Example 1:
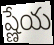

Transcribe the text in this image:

ష్ణేయ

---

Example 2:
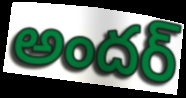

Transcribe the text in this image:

అందర్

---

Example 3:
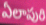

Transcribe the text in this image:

ఏలాపురి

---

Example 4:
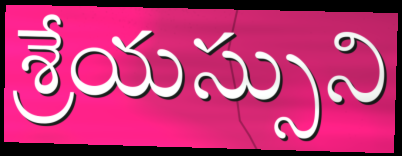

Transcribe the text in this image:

శ్రేయస్సుని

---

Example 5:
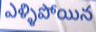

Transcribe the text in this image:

ఎళ్ళిపోయిన